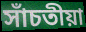
সাঁচতীয়া